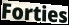
Forties